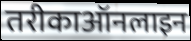
तरीकाऑनलाइन